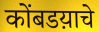
कोंबडय़ाचे